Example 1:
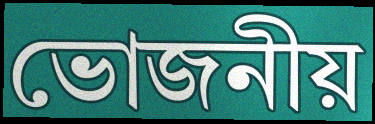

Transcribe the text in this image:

ভোজনীয়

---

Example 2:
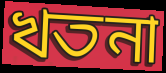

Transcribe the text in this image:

খতনা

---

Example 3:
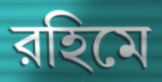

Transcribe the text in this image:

রহিমে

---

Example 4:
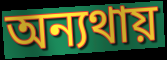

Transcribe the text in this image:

অন্যথায়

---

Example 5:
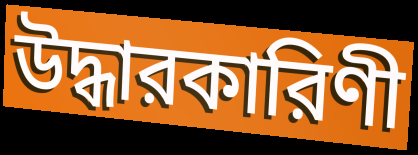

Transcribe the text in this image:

উদ্ধারকারিণী